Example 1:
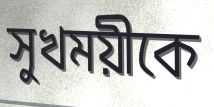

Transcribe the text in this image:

সুখময়ীকে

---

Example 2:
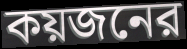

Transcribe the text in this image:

কয়জনের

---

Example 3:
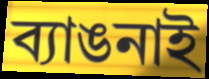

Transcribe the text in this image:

ব্যাঙনাই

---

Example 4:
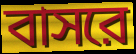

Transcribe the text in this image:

বাসরে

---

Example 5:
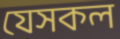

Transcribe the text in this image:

যেসকল